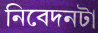
নিবেদনটা